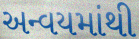
અન્વયમાંથી